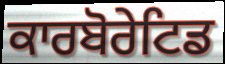
ਕਾਰਬੋਰੇਟਿਡ